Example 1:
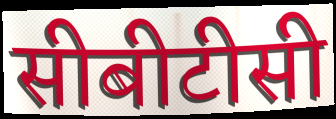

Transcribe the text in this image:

सीबीटीसी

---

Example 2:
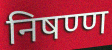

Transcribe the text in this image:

निषण्ण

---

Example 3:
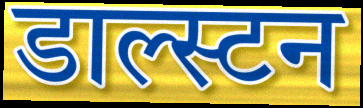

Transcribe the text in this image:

डाल्स्टन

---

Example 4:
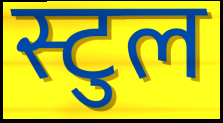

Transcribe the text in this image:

स्टुल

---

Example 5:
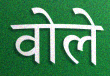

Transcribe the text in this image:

वोले